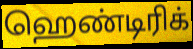
ஹெண்டிரிக்